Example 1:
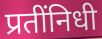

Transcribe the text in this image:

प्रतींनिधी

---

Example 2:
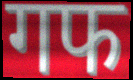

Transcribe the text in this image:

गफ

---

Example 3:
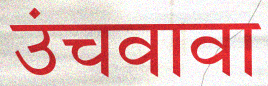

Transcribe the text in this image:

उंचवावा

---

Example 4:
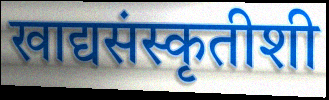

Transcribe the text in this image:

खाद्यसंस्कृतीशी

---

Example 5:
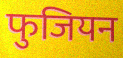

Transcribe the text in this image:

फुजियन